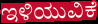
ಇಳಿಯುವಿಕೆ